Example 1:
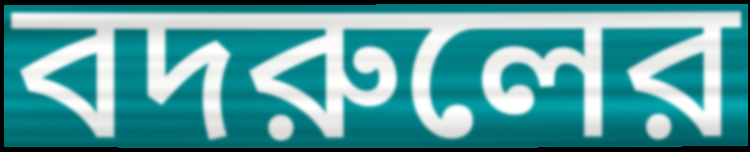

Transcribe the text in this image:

বদরুলের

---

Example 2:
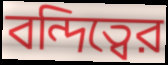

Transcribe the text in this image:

বন্দিত্বের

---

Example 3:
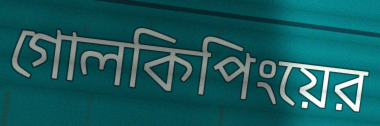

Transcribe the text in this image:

গোলকিপিংয়ের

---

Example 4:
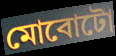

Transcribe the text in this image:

মোবোটো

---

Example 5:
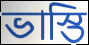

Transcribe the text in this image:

ভাস্তি